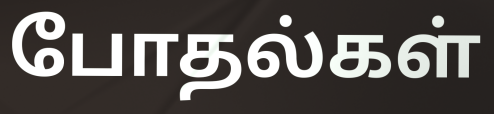
போதல்கள்